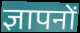
ज्ञापनों